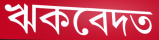
ঋকবেদত